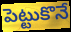
పెట్టుకొనే